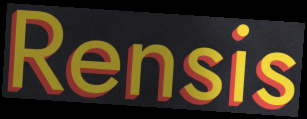
Rensis